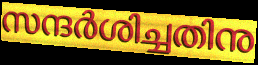
സന്ദർശിച്ചതിനു